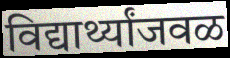
विद्यार्थ्यांजवळ